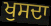
ਖੁਸਦਾ